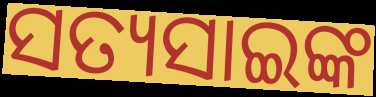
ସତ୍ୟସାଇଙ୍କ